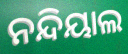
ନନ୍ଦିୟାଲ